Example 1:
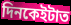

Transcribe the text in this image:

দিনকেইটাত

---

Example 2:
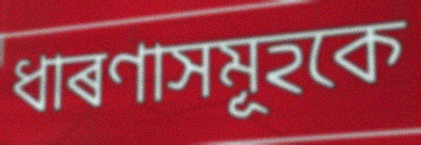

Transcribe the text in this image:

ধাৰণাসমূহকে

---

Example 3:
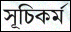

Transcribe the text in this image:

সূচিকৰ্ম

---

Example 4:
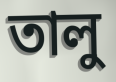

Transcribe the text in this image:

তালু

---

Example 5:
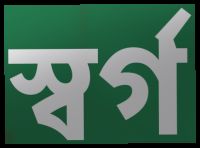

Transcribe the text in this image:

স্বৰ্গ